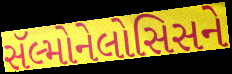
સૅલ્મોનેલોસિસને